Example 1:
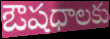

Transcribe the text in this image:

ఔషధాలకు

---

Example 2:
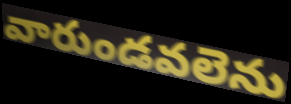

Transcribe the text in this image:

వారుండవలెను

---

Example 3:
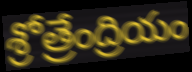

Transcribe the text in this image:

శ్రోత్రేంద్రియం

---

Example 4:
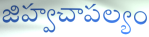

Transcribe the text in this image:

జిహ్వచాపల్యం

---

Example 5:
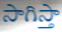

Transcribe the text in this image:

సాగిస్తా